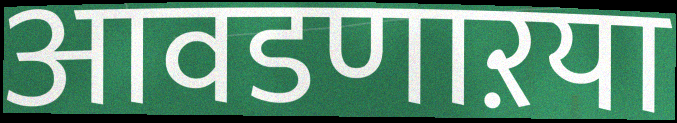
आवडणाऱया